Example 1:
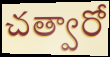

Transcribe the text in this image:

చత్వారో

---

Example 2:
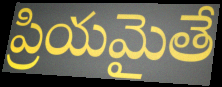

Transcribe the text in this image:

ప్రియమైతే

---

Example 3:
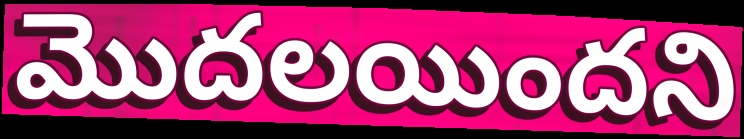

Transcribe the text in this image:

మొదలయిందని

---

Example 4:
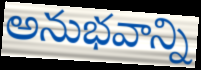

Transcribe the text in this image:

అనుభవాన్ని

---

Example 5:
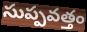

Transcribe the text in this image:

సుప్పవత్తం